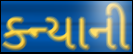
ક્ન્યાની